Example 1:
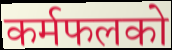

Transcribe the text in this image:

कर्मफलको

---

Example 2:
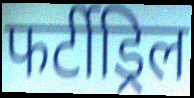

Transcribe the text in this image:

फर्टीड्रिल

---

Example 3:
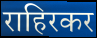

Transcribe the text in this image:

राहिरकर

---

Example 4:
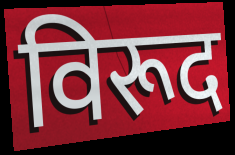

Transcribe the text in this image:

विरूद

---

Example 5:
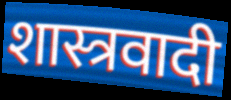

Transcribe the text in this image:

शास्त्रवादी